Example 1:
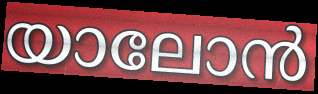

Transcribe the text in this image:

യാലോൻ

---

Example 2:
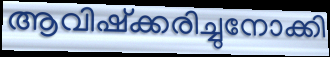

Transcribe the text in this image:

ആവിഷ്ക്കരിച്ചുനോക്കി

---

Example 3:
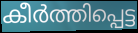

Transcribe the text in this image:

കീർത്തിപ്പെട്ട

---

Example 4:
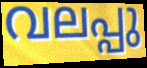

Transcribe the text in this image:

വലപ്പു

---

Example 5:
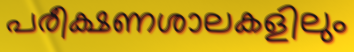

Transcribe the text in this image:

പരീക്ഷണശാലകളിലും